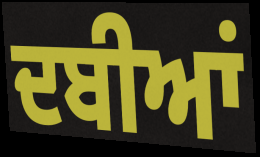
ਦਬੀਆਂ